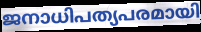
ജനാധിപത്യപരമായി